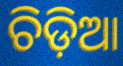
ଚିଡ଼ିଆ